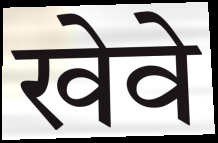
खेवे